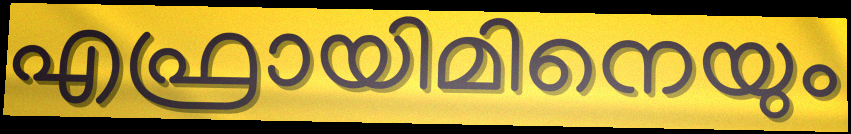
എഫ്രായിമിനെയും